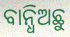
ବାନ୍ଧିଅଛୁ